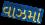
વાઝમાં